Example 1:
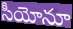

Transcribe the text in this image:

సీయోనూ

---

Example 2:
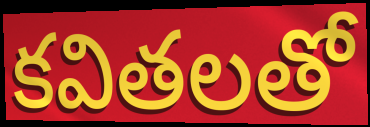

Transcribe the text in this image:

కవితలతో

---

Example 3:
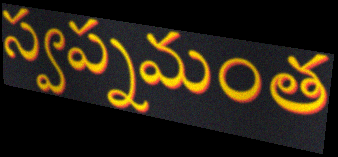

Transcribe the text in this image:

స్వప్నమంత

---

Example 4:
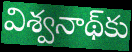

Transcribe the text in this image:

విశ్వనాథ్‌కు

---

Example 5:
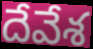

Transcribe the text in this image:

దేవేశ